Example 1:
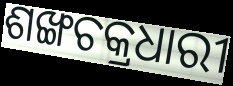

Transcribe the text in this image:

ଶଙ୍ଖଚକ୍ରଧାରୀ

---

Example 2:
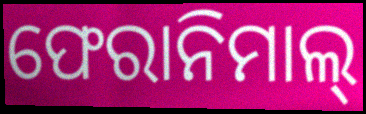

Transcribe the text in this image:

ଫେରାନିମାଲ୍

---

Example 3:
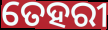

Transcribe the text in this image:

ତେହରୀ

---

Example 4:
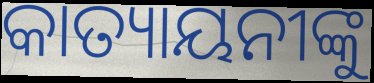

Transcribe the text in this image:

କାତ୍ୟାୟନୀଙ୍କୁ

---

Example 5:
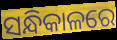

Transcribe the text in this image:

ସନ୍ଧିକାଳରେ